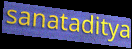
sanataditya